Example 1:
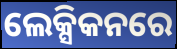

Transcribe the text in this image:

ଲେକ୍ସିକନରେ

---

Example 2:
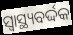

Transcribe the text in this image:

ସ୍ଵାସ୍ଥ୍ୟବର୍ଦ୍ଦକ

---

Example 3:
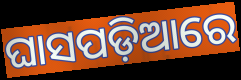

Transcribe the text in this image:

ଘାସପଡ଼ିଆରେ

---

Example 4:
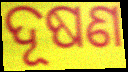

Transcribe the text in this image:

ଦୂଷଣ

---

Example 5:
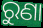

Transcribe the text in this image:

ରୁଣା